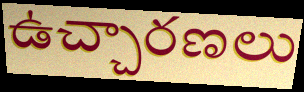
ఉచ్చారణలు